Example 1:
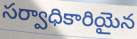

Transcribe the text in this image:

సర్వాధికారియైన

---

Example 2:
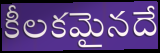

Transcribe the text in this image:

కీలకమైనదే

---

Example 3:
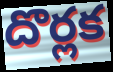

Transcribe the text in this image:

దొర్లక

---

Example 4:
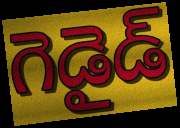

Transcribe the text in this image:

గెడైడ్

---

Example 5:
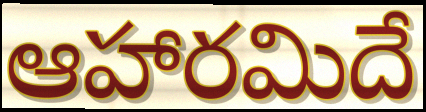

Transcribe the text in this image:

ఆహారమిదే